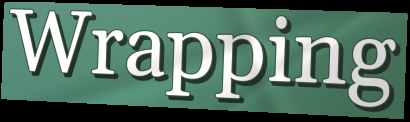
Wrapping